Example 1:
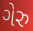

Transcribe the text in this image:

ગેરુ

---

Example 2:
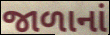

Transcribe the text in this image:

જાળાનાં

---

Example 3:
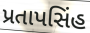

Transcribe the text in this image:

પ્રતાપસિંહ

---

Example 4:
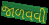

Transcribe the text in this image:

જાળવવી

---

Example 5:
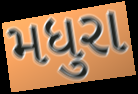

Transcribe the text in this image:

મધુરા